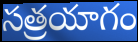
సత్రయాగం